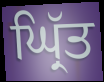
ਘ੍ਰਿੱਤ